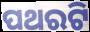
ପଥରଟି